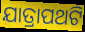
ଯାତ୍ରାପଥଟି